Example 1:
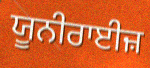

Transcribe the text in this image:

ਯੂਨੀਰਾਈਜ਼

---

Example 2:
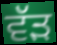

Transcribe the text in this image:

ਵੱੜ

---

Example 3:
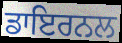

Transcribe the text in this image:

ਡਾਇਰਨਲ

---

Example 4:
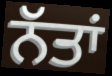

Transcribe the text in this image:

ਨੱਤਾਂ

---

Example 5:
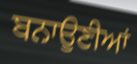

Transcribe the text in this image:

ਬਨਾਉਣੀਆਂ